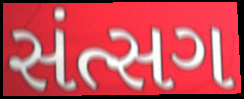
સંત્સગ